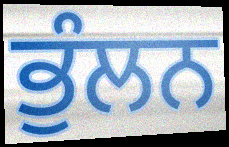
ਭੁੰਲਨ